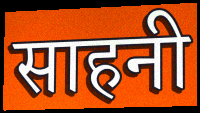
साहनी